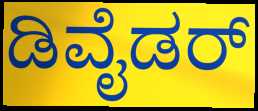
ಡಿವೈಡರ್